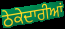
ਠੇਕੇਦਾਰੀਆਂ